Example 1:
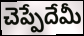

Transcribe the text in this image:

చెప్పేదేమీ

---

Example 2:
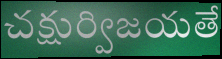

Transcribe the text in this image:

చక్షుర్విజయతే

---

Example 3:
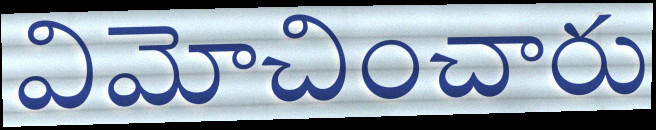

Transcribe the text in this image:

విమోచించారు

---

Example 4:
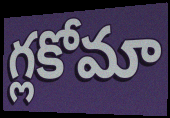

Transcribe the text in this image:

గ్లకోమా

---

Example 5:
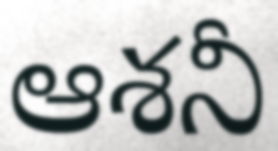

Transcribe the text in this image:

ఆశనీ